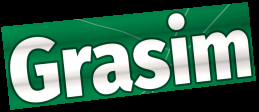
Grasim